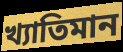
খ্যাতিমান